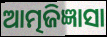
ଆତ୍ମଜିଜ୍ଞାସା